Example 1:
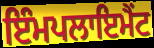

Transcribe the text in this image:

ਇੰਮਪਲਾਇਮੈਂਟ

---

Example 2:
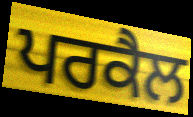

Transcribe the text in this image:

ਪਰਕੈਲ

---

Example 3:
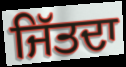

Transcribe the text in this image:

ਜਿੱਤਦਾ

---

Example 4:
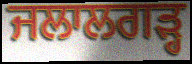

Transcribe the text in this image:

ਜਲਾਲਗੜ੍ਹ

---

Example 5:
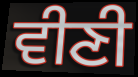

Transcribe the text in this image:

ਵੀਣੀ